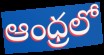
ఆంధ్రలో